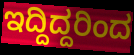
ಇದ್ದಿದ್ದರಿಂದ